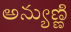
అన్యుణ్ణి